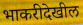
भाकरीदेखील